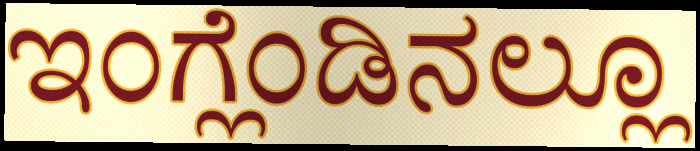
ಇಂಗ್ಲೆಂಡಿನಲ್ಲೂ